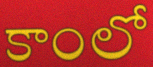
కాంలో